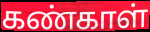
கண்காள்